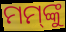
ମମ୍‌ଙ୍କୁ